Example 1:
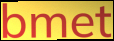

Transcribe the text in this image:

bmet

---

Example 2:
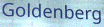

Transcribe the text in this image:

Goldenberg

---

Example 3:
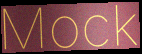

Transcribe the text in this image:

Mock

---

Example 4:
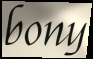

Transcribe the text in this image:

bony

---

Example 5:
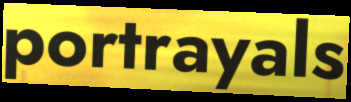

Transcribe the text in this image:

portrayals